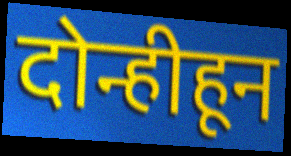
दोन्हीहून